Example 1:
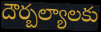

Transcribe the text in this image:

దౌర్బల్యాలకు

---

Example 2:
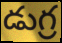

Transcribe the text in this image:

డుగ్ర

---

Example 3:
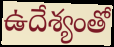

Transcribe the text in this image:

ఉదేశ్యంతో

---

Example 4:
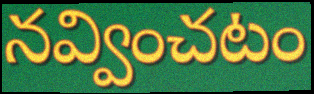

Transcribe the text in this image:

నవ్వించటం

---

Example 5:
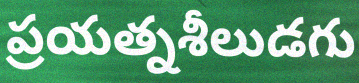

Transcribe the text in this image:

ప్రయత్నశీలుడగు